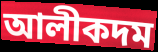
আলীকদম